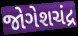
જોગેશચંદ્ર